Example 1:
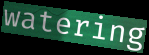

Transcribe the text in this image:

watering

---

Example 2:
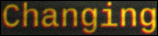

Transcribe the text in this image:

Changing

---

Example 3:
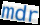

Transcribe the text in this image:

mdr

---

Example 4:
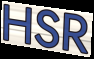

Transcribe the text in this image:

HSR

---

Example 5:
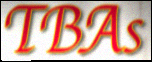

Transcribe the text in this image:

TBAs